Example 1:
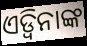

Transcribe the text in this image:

ଏଡ୍ୱିନାଙ୍କ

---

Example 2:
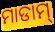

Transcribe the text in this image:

ମାଡାମ୍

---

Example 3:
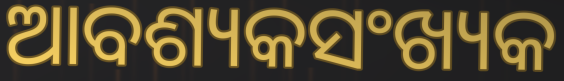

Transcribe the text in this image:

ଆବଶ୍ୟକସଂଖ୍ୟକ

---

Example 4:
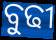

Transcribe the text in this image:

ବୁଢୀ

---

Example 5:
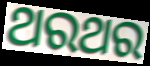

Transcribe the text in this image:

ଥରଥର